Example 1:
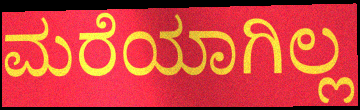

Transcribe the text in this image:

ಮರೆಯಾಗಿಲ್ಲ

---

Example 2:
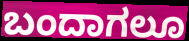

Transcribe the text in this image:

ಬಂದಾಗಲೂ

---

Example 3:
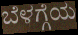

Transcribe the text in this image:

ಬೆಳಗ್ಗೆಯ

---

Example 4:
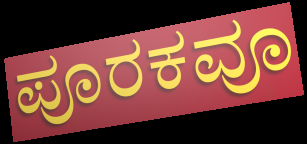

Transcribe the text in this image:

ಪೂರಕವೂ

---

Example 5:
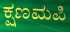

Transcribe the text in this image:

ಕ್ಷಣಮಪಿ